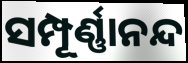
ସମ୍ପୂର୍ଣ୍ଣାନନ୍ଦ